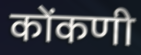
कोंकणी